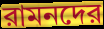
রামনদের